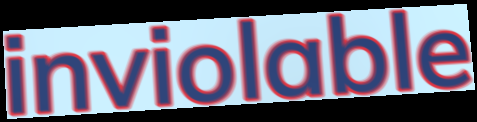
inviolable